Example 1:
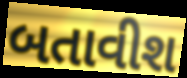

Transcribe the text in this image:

બતાવીશ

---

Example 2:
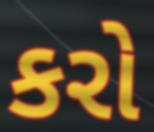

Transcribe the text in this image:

કરો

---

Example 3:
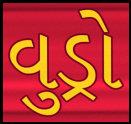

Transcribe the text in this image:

વુડ્રો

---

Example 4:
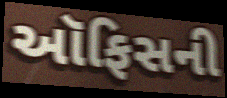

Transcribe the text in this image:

ઑફિસની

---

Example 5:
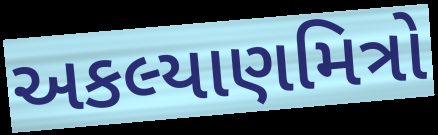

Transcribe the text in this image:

અકલ્યાણમિત્રો